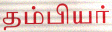
தம்பியர்